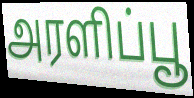
அரளிப்பூ